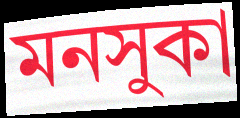
মনসুকা